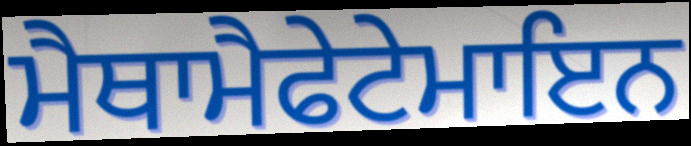
ਮੈਥਾਮੈਫੇਟੇਮਾਇਨ